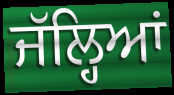
ਜੱਲ੍ਹਿਆਂ